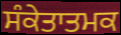
ਸੰਕੇਤਾਤਮਕ